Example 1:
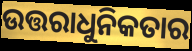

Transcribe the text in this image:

ଉତ୍ତରାଧୁନିକତାର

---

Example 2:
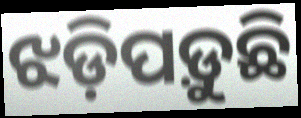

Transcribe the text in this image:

ଝଡ଼ିପଡ଼ୁଛି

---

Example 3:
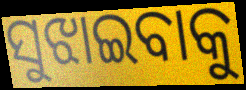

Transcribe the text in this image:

ସୁଝାଇବାକୁ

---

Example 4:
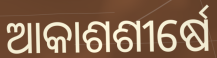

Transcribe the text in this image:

ଆକାଶଶୀର୍ଷେ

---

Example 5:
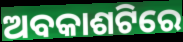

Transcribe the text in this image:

ଅବକାଶଟିରେ